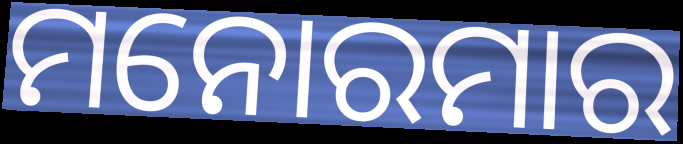
ମନୋରମାର